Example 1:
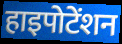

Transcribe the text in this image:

हाइपोटेंशन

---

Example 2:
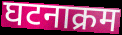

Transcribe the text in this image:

घटनाक्रम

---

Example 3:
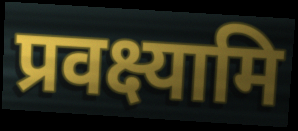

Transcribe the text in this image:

प्रवक्ष्यामि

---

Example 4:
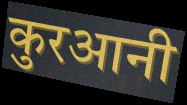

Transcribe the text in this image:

कुरआनी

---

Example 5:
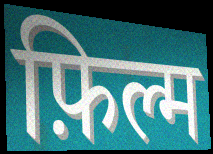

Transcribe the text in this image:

फ़िल्म